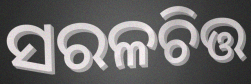
ସରଳଚିତ୍ତ